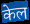
केल